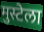
मुस्टेला